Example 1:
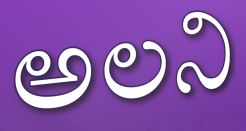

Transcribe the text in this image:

అలని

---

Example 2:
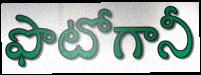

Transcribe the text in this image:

ఫొటోగానీ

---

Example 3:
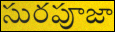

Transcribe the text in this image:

సురపూజా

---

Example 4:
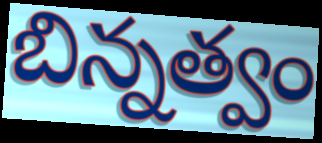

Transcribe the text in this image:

బిన్నత్వం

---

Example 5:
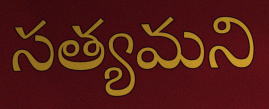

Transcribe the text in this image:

సత్యమని